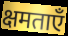
क्षमताएँ